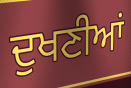
ਦੁਖਣੀਆਂ